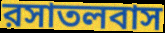
রসাতলবাস